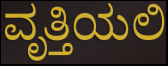
ವೃತ್ತಿಯಲಿ